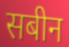
सबीन